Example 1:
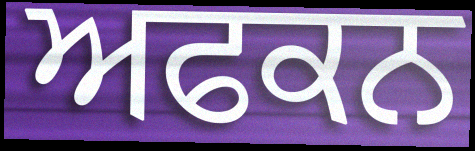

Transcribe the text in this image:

ਅਫਕਨ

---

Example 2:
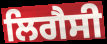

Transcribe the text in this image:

ਲਿਗੈਸੀ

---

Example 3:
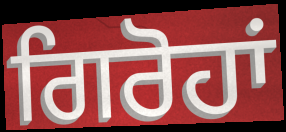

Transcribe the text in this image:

ਗਿਰੋਹਾਂ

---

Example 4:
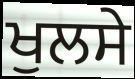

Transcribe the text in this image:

ਖੁਲਸੇ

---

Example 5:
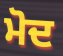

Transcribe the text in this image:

ਮੋਦ